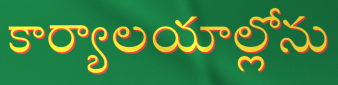
కార్యాలయాల్లోను